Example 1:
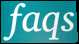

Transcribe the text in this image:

faqs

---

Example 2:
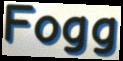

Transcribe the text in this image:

Fogg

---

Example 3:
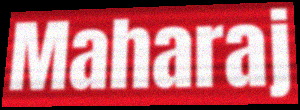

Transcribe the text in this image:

Maharaj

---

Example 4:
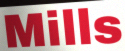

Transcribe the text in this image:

Mills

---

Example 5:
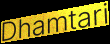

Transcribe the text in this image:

Dhamtari